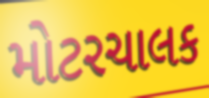
મોટરચાલક